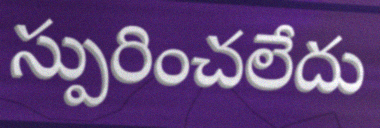
స్పురించలేదు